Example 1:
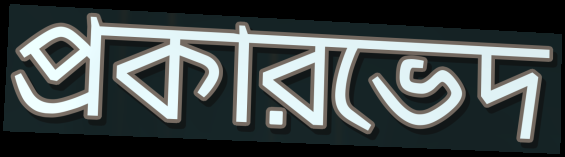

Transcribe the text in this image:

প্রকারভেদ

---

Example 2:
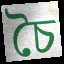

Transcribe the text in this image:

চৈ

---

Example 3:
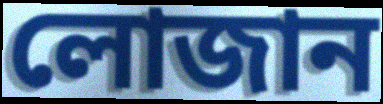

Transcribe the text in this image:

লোজান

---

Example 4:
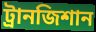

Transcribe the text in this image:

ট্রানজিশান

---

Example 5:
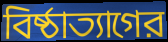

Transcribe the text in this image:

বিষ্ঠাত্যাগের